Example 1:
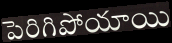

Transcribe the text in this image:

పెరిగిపోయాయి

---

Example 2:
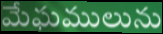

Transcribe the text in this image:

మేఘములును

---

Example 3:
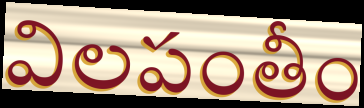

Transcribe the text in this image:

విలపంతీం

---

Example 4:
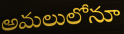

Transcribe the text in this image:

అమలులోనూ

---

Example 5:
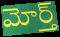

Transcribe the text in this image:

మోర్త్